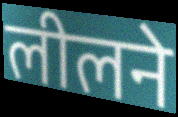
लीलने